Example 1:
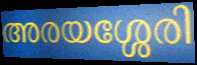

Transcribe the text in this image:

അരയശ്ശേരി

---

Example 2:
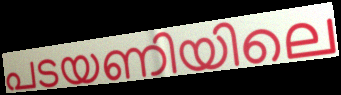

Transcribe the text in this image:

പടയണിയിലെ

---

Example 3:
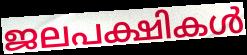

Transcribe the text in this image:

ജലപക്ഷികൾ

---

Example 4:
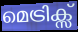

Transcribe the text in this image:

മെട്രിക്സ്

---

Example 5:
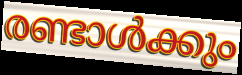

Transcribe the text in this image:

രണ്ടാൾക്കും